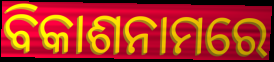
ବିକାଶନାମରେ